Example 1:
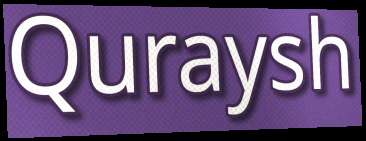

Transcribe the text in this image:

Quraysh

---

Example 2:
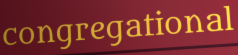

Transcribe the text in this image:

congregational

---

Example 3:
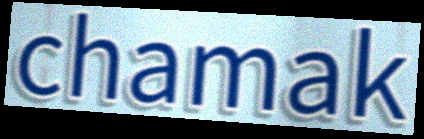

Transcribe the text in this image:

chamak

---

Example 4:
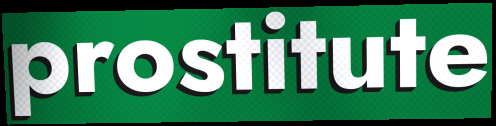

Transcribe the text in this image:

prostitute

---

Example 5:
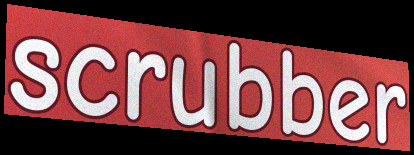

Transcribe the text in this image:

scrubber